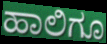
ಹಾಲಿಗೂ